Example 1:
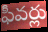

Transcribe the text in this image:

ఫీవర్లు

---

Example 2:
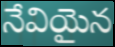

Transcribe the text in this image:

నేవియైన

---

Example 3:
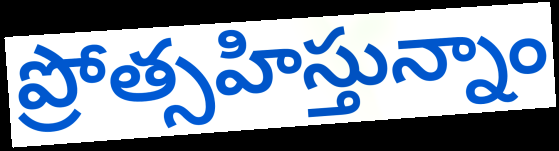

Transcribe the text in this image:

ప్రోత్సహిస్తున్నాం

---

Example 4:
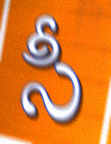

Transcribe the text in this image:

సీ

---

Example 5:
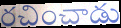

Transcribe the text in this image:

రచించాడు